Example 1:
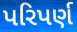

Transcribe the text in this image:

પરિપર્ણ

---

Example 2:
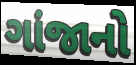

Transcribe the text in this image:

ગાંજાનો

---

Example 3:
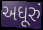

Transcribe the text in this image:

અધૂરું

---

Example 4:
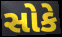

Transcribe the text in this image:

સોકે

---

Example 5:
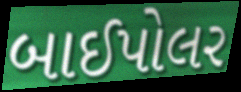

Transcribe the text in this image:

બાઈપોલર